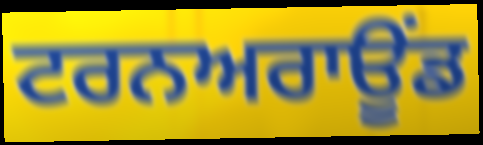
ਟਰਨਅਰਾਊਂਡ